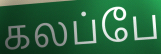
கலப்பே